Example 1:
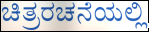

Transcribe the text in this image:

ಚಿತ್ರರಚನೆಯಲ್ಲಿ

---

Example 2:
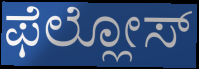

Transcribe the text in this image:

ಫೆಲ್ಲೋಸ್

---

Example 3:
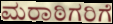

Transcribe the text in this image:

ಮರಾಠಿಗರಿಗೆ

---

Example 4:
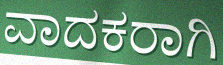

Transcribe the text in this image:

ವಾದಕರಾಗಿ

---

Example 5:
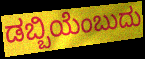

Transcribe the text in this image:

ಡಬ್ಬಿಯೆಂಬುದು